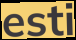
esti